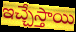
ఇచ్చేస్తాయి